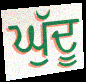
ਘੁੱਦੂ